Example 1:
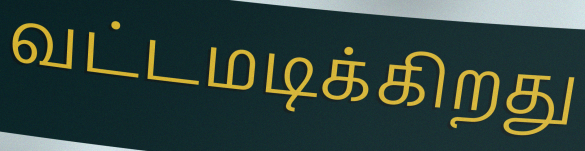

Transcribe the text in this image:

வட்டமடிக்கிறது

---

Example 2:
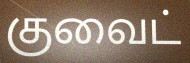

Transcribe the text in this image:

குவைட்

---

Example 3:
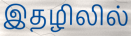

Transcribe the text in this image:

இதழிலில்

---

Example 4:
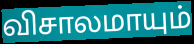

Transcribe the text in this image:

விசாலமாயும்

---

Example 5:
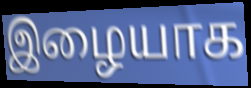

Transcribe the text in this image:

இழையாக